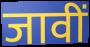
जावीं